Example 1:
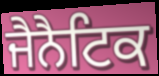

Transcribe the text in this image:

ਜੈਨੈਟਿਕ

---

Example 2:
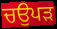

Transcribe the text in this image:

ਚਉਪੜ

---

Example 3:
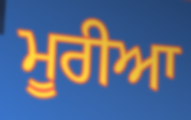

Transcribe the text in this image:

ਮੂਰੀਆ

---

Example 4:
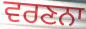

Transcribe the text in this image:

ਵਰਣਨਾ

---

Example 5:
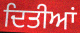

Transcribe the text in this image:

ਦਿਤੀਆਂ